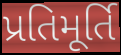
પ્રતિમૂર્તિ